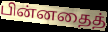
பின்னதைத்